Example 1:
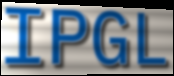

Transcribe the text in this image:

IPGL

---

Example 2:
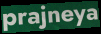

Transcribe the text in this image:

prajneya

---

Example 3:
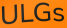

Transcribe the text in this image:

ULGs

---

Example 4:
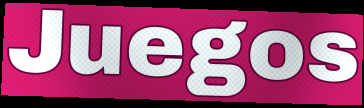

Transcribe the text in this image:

Juegos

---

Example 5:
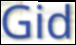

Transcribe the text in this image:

Gid